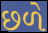
છળે